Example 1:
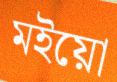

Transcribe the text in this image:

মইয়ো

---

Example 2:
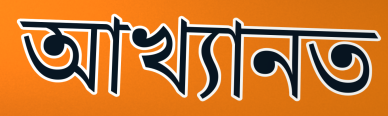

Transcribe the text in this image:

আখ্যানত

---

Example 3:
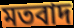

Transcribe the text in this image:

মতবাদ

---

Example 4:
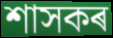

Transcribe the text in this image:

শাসকৰ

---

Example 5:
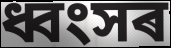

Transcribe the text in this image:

ধ্বংসৰ